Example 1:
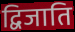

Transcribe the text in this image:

द्विजाति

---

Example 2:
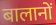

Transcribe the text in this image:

बालानों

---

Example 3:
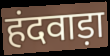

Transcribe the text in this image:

हंदवाड़ा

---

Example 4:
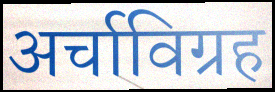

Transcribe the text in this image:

अर्चाविग्रह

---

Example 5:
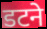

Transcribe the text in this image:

डटने